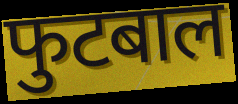
फुटबाल